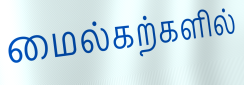
மைல்கற்களில்